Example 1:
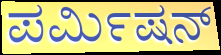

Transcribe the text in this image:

ಪರ್ಮಿಷನ್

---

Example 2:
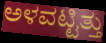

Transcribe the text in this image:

ಅಳವಟ್ಟಿತ್ತು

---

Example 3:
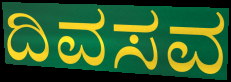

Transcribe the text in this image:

ದಿವಸವ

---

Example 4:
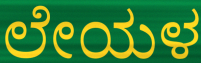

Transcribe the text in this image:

ಲೇಯಳ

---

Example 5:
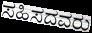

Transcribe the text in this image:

ಸಹಿಸದವರು